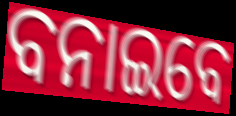
ବନାଇବେ